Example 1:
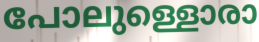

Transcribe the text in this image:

പോലുള്ളൊരാ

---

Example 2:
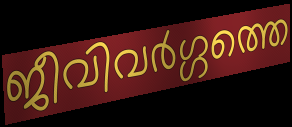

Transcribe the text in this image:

ജീവിവർഗ്ഗത്തെ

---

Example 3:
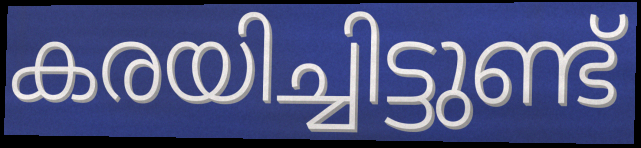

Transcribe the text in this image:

കരയിച്ചിട്ടുണ്ട്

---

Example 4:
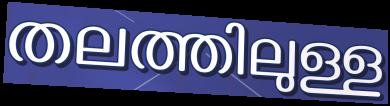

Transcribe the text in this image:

തലത്തിലുള്ള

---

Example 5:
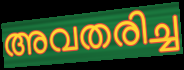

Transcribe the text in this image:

അവതരിച്ച